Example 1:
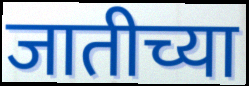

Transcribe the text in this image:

जातीच्या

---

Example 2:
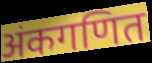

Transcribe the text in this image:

अंकगणित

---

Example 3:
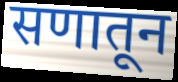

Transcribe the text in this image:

सणातून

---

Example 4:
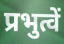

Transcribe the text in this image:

प्रभुत्वें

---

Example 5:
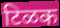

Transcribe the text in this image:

टिळक